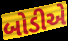
બોડીએ